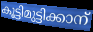
കൂട്ടിമുട്ടിക്കാന്